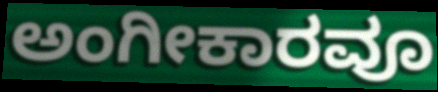
ಅಂಗೀಕಾರವೂ